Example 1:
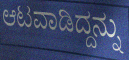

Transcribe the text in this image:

ಆಟವಾಡಿದ್ದನ್ನು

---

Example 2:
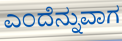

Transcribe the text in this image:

ಎಂದೆನ್ನುವಾಗ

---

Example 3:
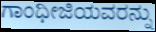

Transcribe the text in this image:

ಗಾಂಧೀಜಿಯವರನ್ನು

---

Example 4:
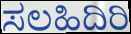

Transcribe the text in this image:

ಸಲಹಿದಿರಿ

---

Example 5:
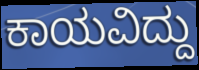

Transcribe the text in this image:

ಕಾಯವಿದ್ದು